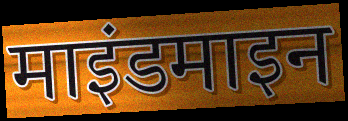
माइंडमाइन